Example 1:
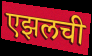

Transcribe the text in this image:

एझलची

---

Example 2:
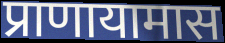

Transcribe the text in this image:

प्राणायामास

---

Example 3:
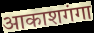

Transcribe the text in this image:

आकाशगंगा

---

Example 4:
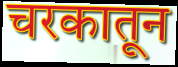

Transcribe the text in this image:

चरकातून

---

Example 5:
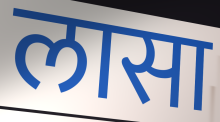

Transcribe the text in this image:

लासा